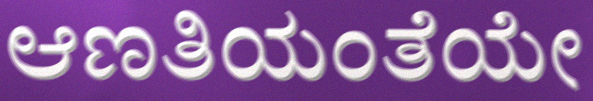
ಆಣತಿಯಂತೆಯೇ